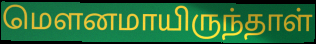
மௌனமாயிருந்தாள்